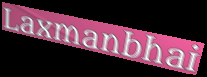
Laxmanbhai